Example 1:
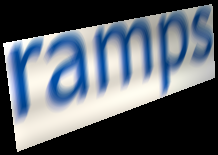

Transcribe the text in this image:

ramps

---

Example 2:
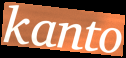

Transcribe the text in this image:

kanto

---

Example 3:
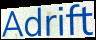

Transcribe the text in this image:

Adrift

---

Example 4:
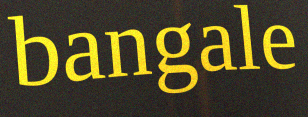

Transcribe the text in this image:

bangale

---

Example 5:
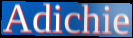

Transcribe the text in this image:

Adichie